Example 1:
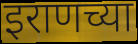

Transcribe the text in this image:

इराणच्या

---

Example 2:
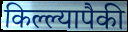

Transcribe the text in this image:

किल्ल्यापैकी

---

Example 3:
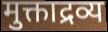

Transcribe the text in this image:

मुक्ताद्रव्य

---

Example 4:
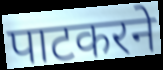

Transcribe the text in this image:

पाटकरने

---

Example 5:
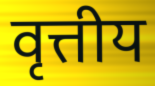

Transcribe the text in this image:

वृत्तीय